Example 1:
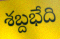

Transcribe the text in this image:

శబ్దభేది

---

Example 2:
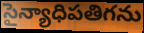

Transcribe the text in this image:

సైన్యాధిపతిగను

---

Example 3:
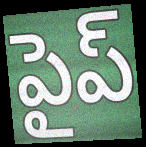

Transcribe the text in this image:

పైప్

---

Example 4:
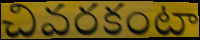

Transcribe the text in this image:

చివరకంటా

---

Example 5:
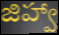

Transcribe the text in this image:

జిహ్వా